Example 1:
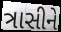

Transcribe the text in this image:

ત્રાસીને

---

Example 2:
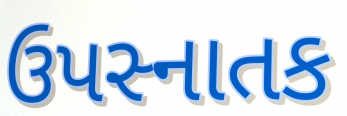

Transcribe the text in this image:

ઉપસ્નાતક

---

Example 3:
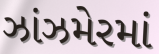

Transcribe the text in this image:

ઝાંઝમેરમાં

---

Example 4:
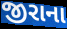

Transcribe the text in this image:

જીરાના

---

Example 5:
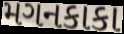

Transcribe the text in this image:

મગનકાકા